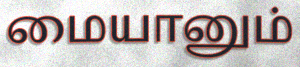
மையானும்